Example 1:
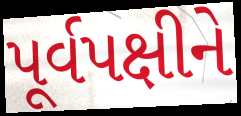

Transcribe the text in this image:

પૂર્વપક્ષીને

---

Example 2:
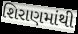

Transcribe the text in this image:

શિરાણમાંથી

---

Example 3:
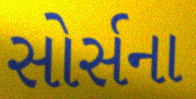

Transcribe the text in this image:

સોર્સના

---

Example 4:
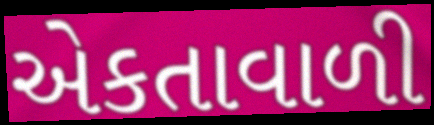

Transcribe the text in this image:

એકતાવાળી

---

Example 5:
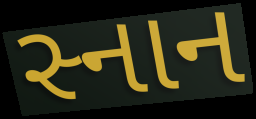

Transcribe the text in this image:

સ્નાન